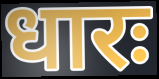
धारः